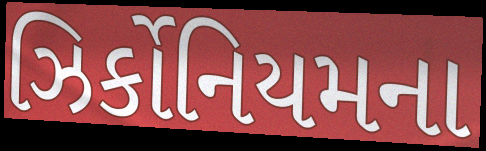
ઝિર્કોનિયમના